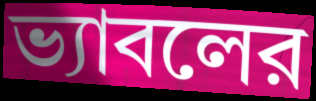
ভ্যাবলের